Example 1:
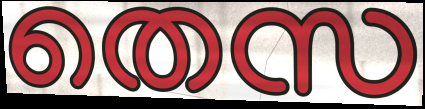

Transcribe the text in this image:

തെസ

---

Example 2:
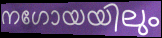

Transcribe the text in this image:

നഗോയയിലും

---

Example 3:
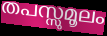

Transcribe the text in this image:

തപസ്സുമൂലം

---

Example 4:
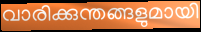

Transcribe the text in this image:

വാരിക്കുന്തങ്ങളുമായി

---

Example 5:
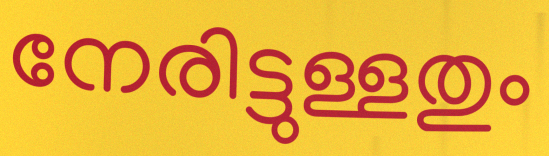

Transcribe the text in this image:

നേരിട്ടുള്ളതും